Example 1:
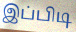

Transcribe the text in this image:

இப்பிடி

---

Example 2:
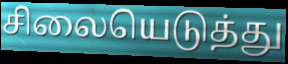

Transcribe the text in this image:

சிலையெடுத்து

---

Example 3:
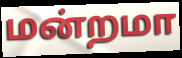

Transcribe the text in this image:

மன்றமா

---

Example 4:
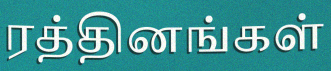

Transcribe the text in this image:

ரத்தினங்கள்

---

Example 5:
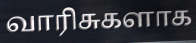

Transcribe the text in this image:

வாரிசுகளாக